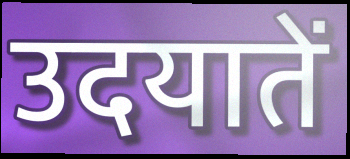
उदयातें